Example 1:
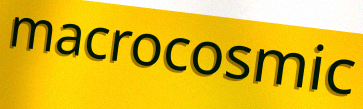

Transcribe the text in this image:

macrocosmic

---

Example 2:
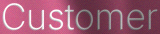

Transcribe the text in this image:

Customer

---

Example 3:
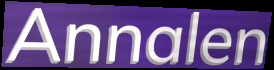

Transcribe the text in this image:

Annalen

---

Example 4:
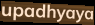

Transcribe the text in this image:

upadhyaya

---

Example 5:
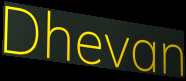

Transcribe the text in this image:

Dhevan